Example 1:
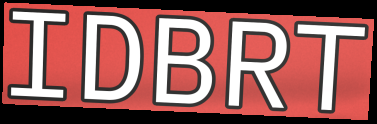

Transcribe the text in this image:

IDBRT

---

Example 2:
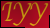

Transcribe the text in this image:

IYY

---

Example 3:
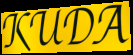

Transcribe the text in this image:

KUDA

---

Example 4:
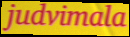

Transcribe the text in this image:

judvimala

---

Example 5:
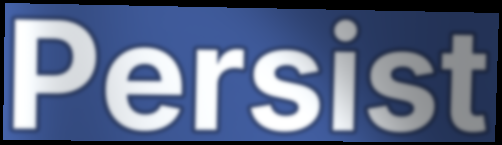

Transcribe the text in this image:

Persist